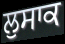
ਲੁਸਾਕ